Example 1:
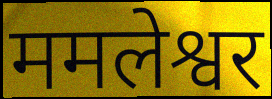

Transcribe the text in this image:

ममलेश्वर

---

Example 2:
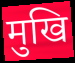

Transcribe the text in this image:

मुखि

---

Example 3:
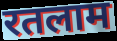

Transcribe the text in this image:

रतलाम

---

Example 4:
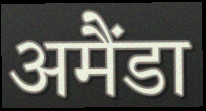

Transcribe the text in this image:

अमैंडा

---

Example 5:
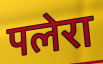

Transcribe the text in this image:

पलेरा